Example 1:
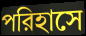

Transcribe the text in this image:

পরিহাসে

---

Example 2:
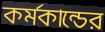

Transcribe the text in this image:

কর্মকান্ডের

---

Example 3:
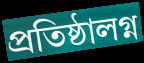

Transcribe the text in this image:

প্রতিষ্ঠালগ্ন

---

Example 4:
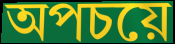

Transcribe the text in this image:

অপচয়ে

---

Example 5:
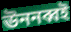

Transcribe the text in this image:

ঊননব্বই